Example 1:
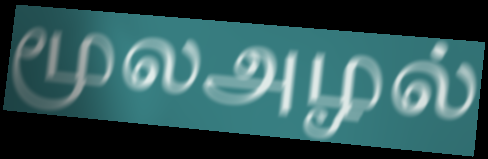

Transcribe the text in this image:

மூலஅழல்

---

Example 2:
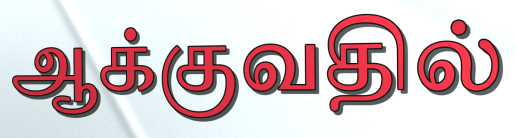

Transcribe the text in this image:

ஆக்குவதில்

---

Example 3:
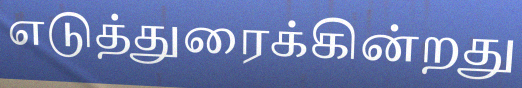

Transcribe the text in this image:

எடுத்துரைக்கின்றது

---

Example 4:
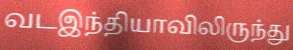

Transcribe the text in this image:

வடஇந்தியாவிலிருந்து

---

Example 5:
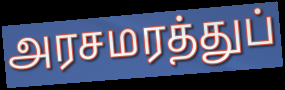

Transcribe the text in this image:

அரசமரத்துப்